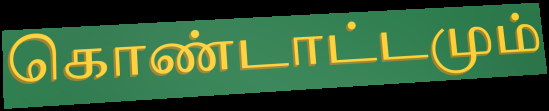
கொண்டாட்டமும்